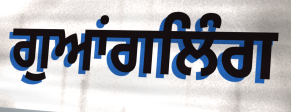
ਗੁਆਂਗਲਿੰਗ